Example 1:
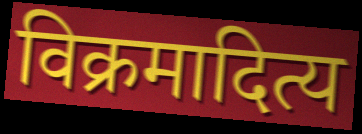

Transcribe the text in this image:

विक्रमादित्य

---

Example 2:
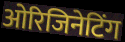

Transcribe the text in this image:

ओरिजिनेटिंग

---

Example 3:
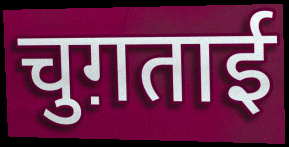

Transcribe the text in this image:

चुग़ताई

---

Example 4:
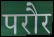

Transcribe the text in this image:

परौर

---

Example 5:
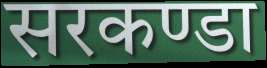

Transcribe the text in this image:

सरकण्डा